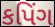
કપિંગ